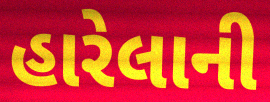
હારેલાની